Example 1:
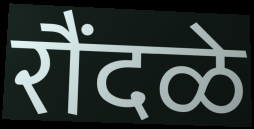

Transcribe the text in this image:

रौंदळे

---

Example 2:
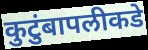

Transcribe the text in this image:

कुटुंबापलीकडे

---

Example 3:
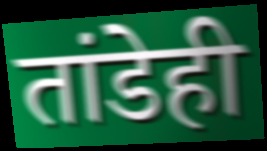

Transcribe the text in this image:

तांडेही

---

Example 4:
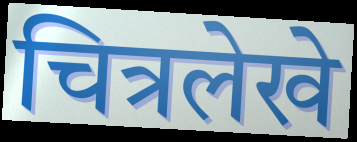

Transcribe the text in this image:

चित्रलेखे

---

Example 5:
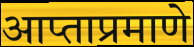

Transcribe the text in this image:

आप्ताप्रमाणे